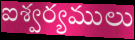
ఐశ్వర్యములు